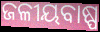
ଜଳୀୟବାଷ୍ପ